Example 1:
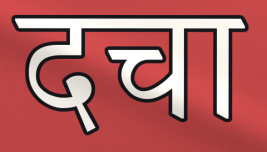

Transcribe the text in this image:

दचा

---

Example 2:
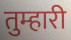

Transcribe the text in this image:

तुम्‍हारी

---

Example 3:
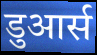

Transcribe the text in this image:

डुआर्स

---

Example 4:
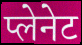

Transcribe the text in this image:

प्लेनेट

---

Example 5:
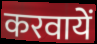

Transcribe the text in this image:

करवायें